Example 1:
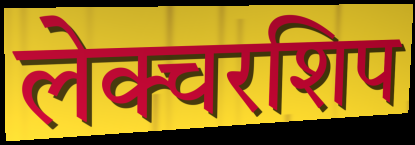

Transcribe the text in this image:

लेक्चरशिप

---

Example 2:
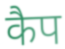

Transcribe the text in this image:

कैप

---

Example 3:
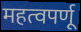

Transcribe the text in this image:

महत्‍वपर्णू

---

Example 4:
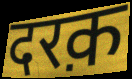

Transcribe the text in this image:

दरक़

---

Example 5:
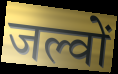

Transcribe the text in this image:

जल्वों